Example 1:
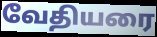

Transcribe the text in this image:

வேதியரை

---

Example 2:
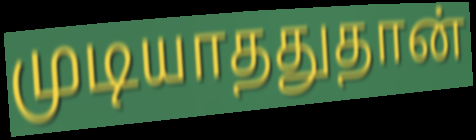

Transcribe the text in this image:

முடியாததுதான்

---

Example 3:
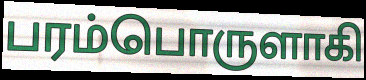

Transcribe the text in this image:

பரம்பொருளாகி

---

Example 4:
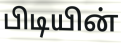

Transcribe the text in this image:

பிடியின்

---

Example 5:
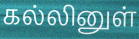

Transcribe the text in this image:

கல்லினுள்